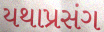
યથાપ્રસંગ